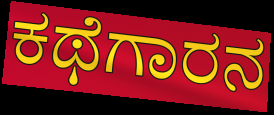
ಕಥೆಗಾರನ